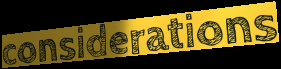
considerations